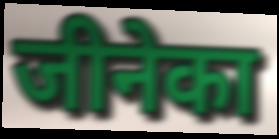
जीनेका